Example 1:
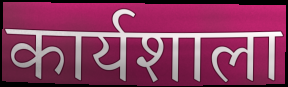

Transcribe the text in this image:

कार्यशाला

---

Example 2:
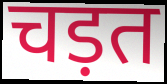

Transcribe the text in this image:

चड़त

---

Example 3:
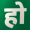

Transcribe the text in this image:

हो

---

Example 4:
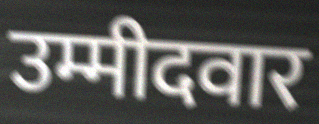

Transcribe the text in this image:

उम्‍मीदवार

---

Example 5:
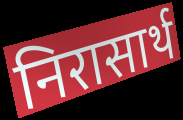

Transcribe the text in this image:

निरासार्थ